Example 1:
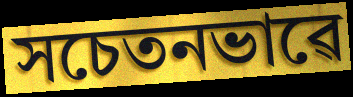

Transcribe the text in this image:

সচেতনভাৱে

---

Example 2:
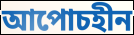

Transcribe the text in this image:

আপোচহীন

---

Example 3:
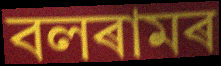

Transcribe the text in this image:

বলৰামৰ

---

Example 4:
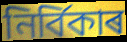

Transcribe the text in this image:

নিৰ্বিকাৰ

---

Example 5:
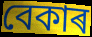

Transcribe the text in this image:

বেকাৰ